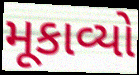
મૂકાવ્યો